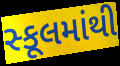
સ્કૂલમાંથી